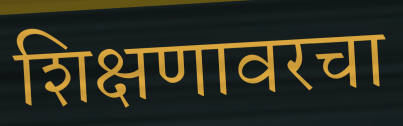
शिक्षणावरचा